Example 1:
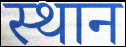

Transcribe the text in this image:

स्थान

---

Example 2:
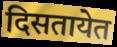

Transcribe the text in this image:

दिसतायेत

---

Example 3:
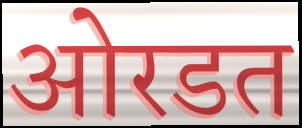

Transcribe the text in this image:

ओरडत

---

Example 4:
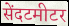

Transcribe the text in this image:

सेंदटमीटर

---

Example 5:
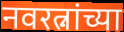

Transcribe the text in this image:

नवरत्नांच्या